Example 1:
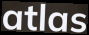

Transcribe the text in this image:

atlas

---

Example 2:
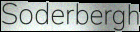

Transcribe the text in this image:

Soderbergh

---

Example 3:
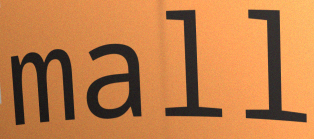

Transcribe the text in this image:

mall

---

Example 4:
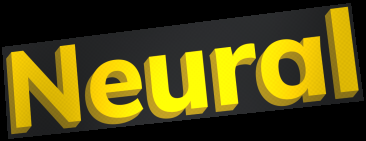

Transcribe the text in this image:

Neural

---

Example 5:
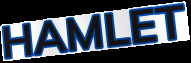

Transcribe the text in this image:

HAMLET